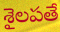
శైలపతే